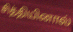
சித்தியினால்